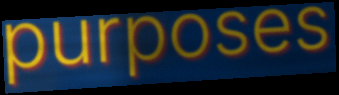
purposes